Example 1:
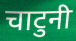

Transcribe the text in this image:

चाटुनी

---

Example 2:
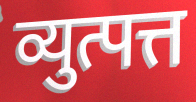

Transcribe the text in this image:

व्युत्पत्त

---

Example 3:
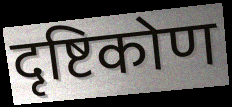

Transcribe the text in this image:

दृष्टिकोण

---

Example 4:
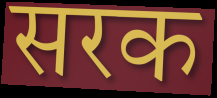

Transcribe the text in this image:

सरक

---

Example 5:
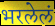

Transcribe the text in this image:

भरलेलं